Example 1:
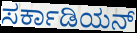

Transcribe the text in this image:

ಸರ್ಕಾಡಿಯನ್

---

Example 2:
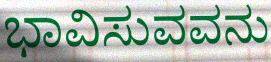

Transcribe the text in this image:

ಭಾವಿಸುವವನು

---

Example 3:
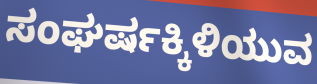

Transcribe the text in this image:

ಸಂಘರ್ಷಕ್ಕಿಳಿಯುವ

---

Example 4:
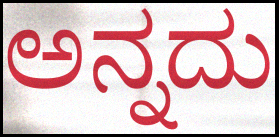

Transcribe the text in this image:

ಅನ್ನದು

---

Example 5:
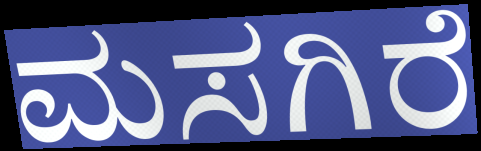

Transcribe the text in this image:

ಮಸಗಿರೆ